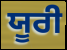
ਯੂਰੀ